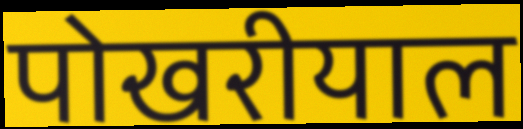
पोखरीयाल